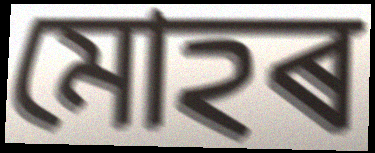
মোহৰ